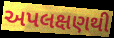
અપલક્ષણથી